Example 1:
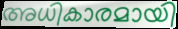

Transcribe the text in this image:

അധികാരമായി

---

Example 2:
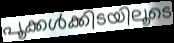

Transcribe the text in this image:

പൂക്കൾക്കിടയിലൂടെ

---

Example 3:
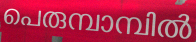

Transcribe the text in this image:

പെരുമ്പാമ്പിൽ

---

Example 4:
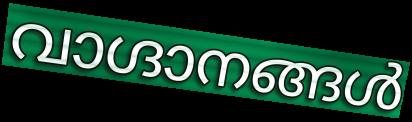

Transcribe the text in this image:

വാഗ്ദാനങ്ങൾ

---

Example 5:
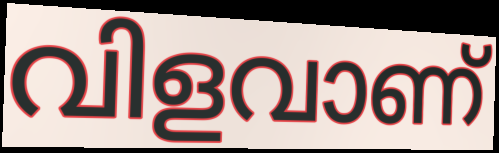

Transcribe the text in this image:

വിളവാണ്